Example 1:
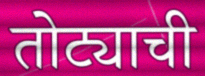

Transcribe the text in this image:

तोट्याची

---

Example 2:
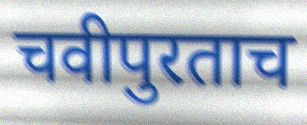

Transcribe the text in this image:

चवीपुरताच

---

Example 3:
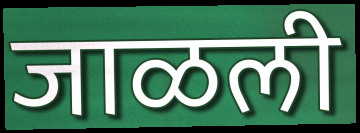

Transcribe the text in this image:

जाळली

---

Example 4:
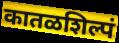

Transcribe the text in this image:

कातळशिल्पं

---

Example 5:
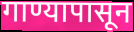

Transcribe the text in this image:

गाण्यापासून